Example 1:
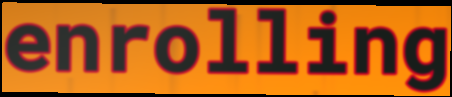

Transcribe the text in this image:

enrolling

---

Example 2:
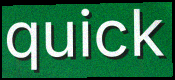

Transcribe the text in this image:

quick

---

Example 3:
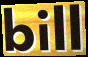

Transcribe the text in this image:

bill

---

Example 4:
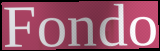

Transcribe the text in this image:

Fondo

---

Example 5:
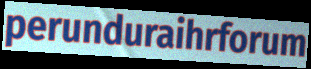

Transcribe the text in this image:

perunduraihrforum